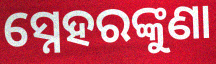
ସ୍ନେହରଙ୍କୁଣା